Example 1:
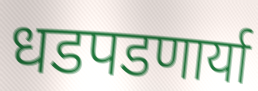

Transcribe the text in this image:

धडपडणार्या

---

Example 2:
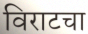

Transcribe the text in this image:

विराटचा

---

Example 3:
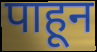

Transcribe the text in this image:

पाहून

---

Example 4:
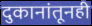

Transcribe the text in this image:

दुकानांतूनही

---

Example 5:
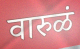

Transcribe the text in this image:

वारुळं